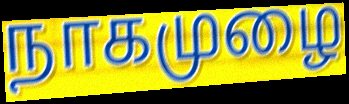
நாகமுழை